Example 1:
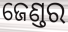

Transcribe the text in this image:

ଜେଣ୍ଡର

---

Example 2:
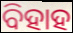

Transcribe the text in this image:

ବିହାହ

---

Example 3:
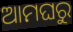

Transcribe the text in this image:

ଆମଘରୁ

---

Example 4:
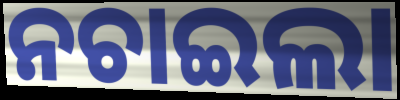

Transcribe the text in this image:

ନଚାଇଲା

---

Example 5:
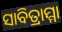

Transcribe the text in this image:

ସାବିତ୍ରାମ୍ମା